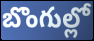
బొంగుల్లో